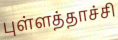
புள்ளத்தாச்சி